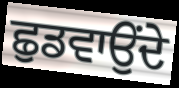
ਛੁਡਵਾਉਂਦੇ